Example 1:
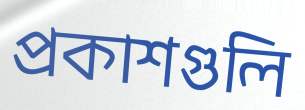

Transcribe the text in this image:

প্রকাশগুলি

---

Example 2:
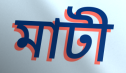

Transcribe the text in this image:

মাটী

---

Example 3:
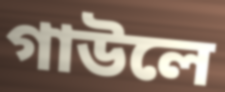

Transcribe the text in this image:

গাউলে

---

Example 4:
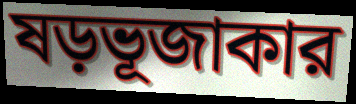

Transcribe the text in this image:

ষড়ভূজাকার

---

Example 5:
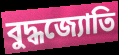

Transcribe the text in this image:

বুদ্ধজ্যোতি